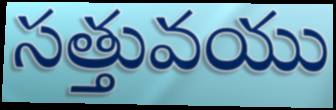
సత్తువయు